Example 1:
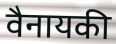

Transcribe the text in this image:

वैनायकी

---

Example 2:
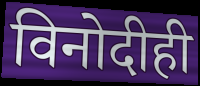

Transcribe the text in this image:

विनोदीही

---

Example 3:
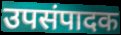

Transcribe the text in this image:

उपसंपादक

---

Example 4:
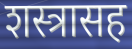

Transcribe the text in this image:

शस्त्रासह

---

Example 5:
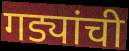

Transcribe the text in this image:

गड्यांची